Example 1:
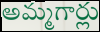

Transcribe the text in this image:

అమ్మగార్లు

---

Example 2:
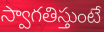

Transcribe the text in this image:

స్వాగతిస్తుంటే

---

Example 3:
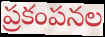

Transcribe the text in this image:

ప్రకంపనల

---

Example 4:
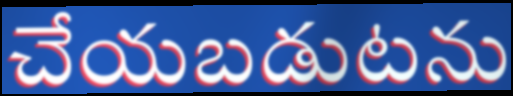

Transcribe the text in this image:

చేయబడుటను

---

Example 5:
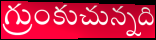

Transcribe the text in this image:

గ్రుంకుచున్నది